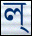
ল্